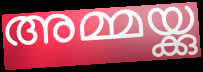
അമ്മയ്ക്കു